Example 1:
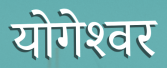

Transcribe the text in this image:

योगेश्‍वर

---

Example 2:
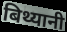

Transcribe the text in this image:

बिथ्यानी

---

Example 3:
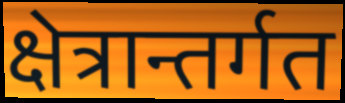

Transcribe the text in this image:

क्षेत्रान्तर्गत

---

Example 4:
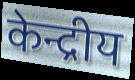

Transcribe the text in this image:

केन्‍द्रीय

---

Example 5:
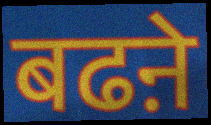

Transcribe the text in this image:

बढऩे